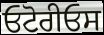
ਓਟੋਰੀਓਸ